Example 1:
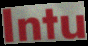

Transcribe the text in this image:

Intu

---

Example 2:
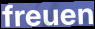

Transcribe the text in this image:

freuen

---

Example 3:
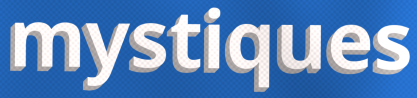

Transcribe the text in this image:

mystiques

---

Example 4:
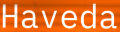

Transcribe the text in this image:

Haveda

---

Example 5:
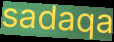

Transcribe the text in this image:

sadaqa